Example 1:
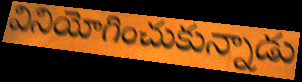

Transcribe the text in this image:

వినియోగించుకున్నాడు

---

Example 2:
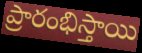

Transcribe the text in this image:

ప్రారంభిస్తాయి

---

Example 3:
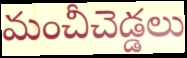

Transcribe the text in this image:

మంచీచెడ్డలు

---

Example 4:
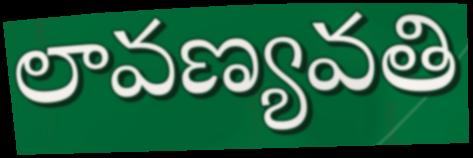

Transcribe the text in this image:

లావణ్యవతి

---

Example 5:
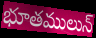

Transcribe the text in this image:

భూతములున్